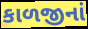
કાળજીનાં